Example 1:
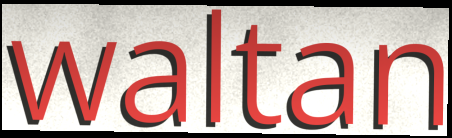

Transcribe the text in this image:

waltan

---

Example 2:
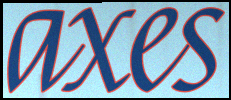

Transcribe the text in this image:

axes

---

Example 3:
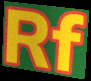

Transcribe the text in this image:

Rf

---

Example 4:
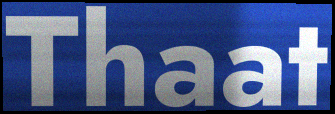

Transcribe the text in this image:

Thaat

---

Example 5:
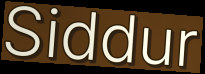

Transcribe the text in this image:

Siddur